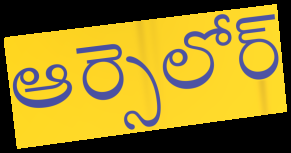
ఆర్సెలోర్